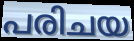
പരിചയ